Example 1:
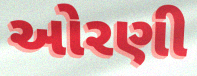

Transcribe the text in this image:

ઓરણી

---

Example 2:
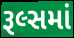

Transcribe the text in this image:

રૂલ્સમાં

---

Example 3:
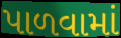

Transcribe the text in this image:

પાળવામાં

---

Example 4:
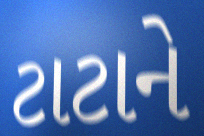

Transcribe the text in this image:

ટાટાને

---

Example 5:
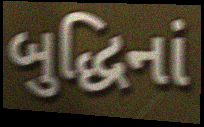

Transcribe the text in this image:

બુદ્ધિનાં